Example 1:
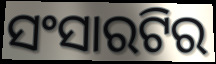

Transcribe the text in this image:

ସଂସାରଟିର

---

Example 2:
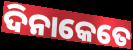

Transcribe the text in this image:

ଦିନାକେତେ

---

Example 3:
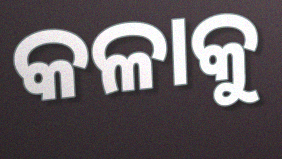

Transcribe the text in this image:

କଳାକୁ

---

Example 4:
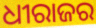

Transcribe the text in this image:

ଧୀରାଜର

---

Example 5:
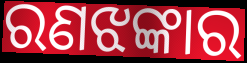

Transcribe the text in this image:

ରଣଝଙ୍କାର